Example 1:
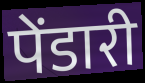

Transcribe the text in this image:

पेंडारी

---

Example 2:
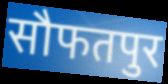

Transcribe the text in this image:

सौफतपुर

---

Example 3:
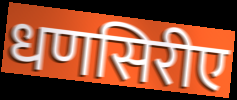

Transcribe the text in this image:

धणसिरीए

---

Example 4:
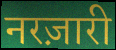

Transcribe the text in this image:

नरज़ारी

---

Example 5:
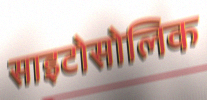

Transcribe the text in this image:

साइटोसोलिक